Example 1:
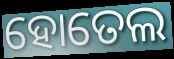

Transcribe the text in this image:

ହୋତେଲ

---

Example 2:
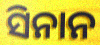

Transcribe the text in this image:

ସିନାନ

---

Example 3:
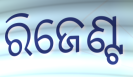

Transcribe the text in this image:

ରିଜେଣ୍ଟ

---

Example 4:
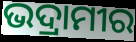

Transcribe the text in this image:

ଭଦ୍ରାମୀର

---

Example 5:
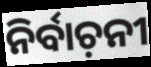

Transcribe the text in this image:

ନିର୍ବାଚ଼ନୀ